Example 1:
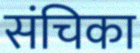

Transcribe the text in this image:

संचिका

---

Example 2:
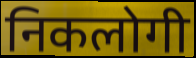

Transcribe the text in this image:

निकलोगी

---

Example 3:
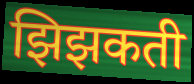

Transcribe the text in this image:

झिझकती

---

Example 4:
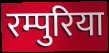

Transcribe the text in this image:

रम्पुरिया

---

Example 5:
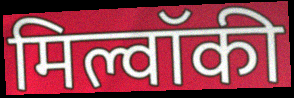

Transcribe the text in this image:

मिल्वॉकी